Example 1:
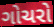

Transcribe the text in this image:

ગોચરો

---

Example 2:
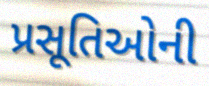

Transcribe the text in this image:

પ્રસૂતિઓની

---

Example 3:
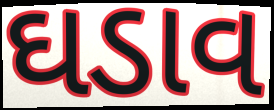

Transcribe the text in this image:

ઘડાવ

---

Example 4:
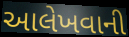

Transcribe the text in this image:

આલેખવાની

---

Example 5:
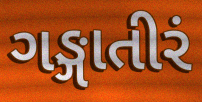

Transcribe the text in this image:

ગઙ્ગાતીરં